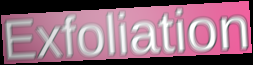
Exfoliation